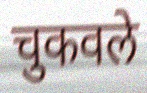
चुकवले